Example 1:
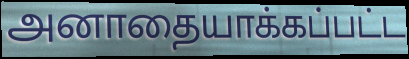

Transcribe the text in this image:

அனாதையாக்கப்பட்ட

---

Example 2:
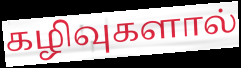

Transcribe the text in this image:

கழிவுகளால்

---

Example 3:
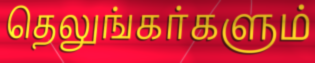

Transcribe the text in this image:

தெலுங்கர்களும்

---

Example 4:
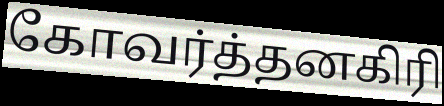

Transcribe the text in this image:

கோவர்த்தனகிரி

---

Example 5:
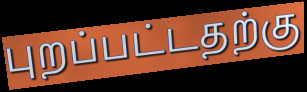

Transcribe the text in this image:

புறப்பட்டதற்கு